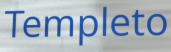
Templeto